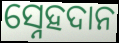
ସ୍ନେହଦାନ